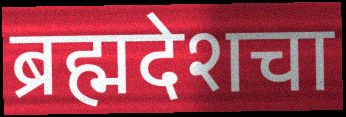
ब्रह्मदेशचा